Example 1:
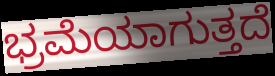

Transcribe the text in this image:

ಭ್ರಮೆಯಾಗುತ್ತದೆ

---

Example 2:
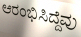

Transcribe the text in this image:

ಆರಂಭಿಸಿದ್ದೆವು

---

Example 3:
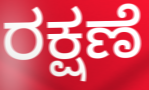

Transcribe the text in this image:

ರಕ್ಷಣೆ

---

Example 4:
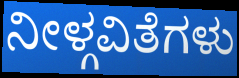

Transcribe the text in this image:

ನೀಳ್ಗವಿತೆಗಳು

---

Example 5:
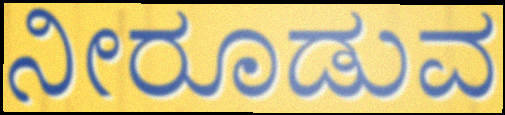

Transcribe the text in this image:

ನೀರೂಡುವ